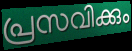
പ്രസവിക്കും